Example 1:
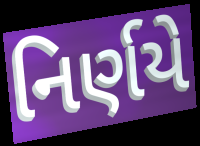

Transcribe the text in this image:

નિર્ણયે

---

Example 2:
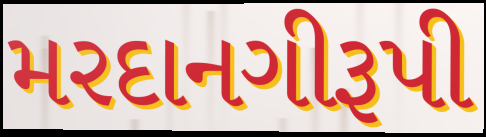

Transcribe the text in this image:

મરદાનગીરૂપી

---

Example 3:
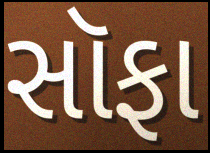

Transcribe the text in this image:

સૉફા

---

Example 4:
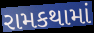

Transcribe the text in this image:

રામકથામાં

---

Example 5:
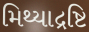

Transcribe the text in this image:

મિથ્યાદ્રષ્ટિ